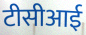
टीसीआई